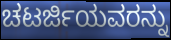
ಚಟರ್ಜಿಯವರನ್ನು